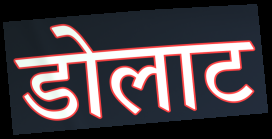
डोलाट